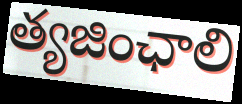
త్యజింఛాలి